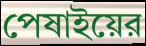
পেষাইয়ের